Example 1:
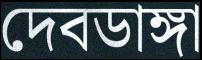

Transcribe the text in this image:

দেবডাঙ্গা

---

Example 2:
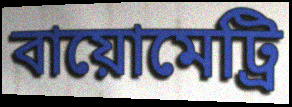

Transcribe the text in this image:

বায়োমেট্রি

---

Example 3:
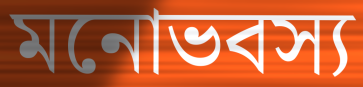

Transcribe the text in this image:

মনোভবস্য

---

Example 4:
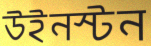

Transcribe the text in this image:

উইনস্টন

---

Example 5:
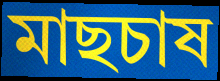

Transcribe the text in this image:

মাছচাষ